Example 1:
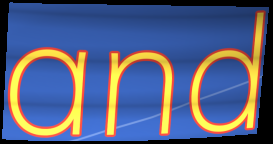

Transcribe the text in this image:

and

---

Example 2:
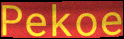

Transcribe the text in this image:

Pekoe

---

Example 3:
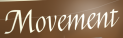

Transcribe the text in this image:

Movement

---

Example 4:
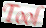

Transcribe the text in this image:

Tool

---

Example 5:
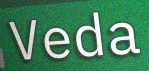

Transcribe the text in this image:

Veda